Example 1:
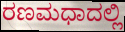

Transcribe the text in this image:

ರಣಮಧಾದಲ್ಲಿ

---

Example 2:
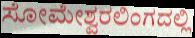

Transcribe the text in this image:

ಸೋಮೇಶ್ವರಲಿಂಗದಲ್ಲಿ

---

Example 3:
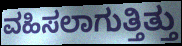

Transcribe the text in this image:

ವಹಿಸಲಾಗುತ್ತಿತ್ತು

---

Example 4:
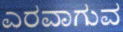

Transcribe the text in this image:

ಎರವಾಗುವ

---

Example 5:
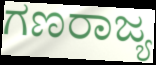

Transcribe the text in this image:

ಗಣರಾಜ್ಯ